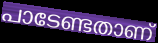
പാടേണ്ടതാണ്